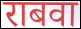
राबवा